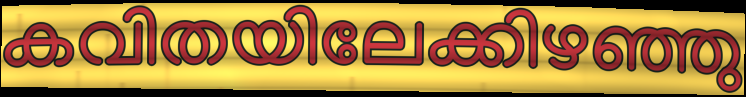
കവിതയിലേക്കിഴഞ്ഞു